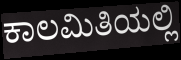
ಕಾಲಮಿತಿಯಲ್ಲಿ